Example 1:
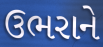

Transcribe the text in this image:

ઉભરાને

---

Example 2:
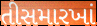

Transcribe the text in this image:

તીસમારખાં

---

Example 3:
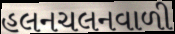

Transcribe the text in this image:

હલનચલનવાળી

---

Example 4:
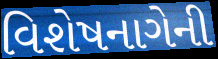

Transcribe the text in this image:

વિશેષનાગેની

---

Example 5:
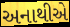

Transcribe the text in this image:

અનાથીએ